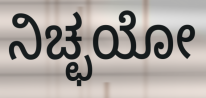
ನಿಚ್ಛಯೋ